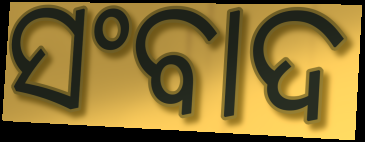
ସଂବାଦ